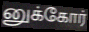
னுக்கோர்